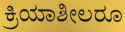
ಕ್ರಿಯಾಶೀಲರೂ